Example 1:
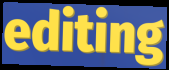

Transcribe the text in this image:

editing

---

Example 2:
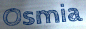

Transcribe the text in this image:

Osmia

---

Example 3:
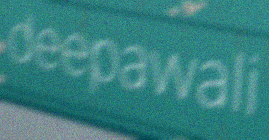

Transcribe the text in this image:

deepawali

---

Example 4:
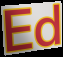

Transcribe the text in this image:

Ed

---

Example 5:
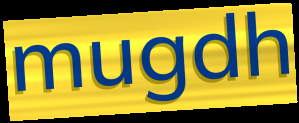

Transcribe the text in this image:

mugdh